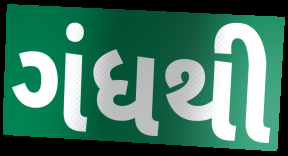
ગંધથી